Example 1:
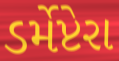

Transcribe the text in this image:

ડર્મેપ્ટેરા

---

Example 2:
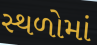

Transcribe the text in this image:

સ્‍થળોમાં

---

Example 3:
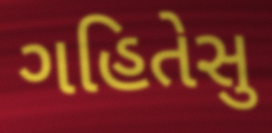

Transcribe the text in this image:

ગહિતેસુ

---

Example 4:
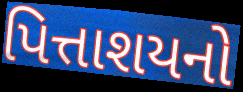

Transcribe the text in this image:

પિત્તાશયનો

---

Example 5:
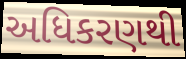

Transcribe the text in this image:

અધિકરણથી